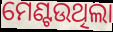
ମେଣ୍ଟଉଥିଲା